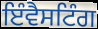
ਇੰਵੈਸਟਿੰਗ